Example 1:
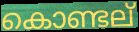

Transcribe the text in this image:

കൊണ്ടല്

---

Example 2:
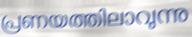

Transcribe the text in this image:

പ്രണയത്തിലാവുന്നു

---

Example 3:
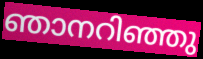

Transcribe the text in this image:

ഞാനറിഞ്ഞു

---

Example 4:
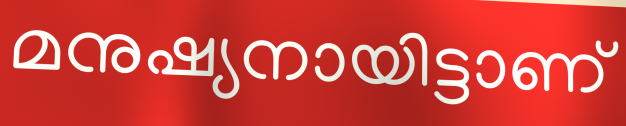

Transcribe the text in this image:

മനുഷ്യനായിട്ടാണ്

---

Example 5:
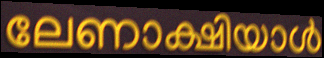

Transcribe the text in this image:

ലേണാക്ഷിയാൾ